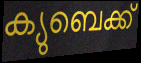
ക്യുബെക്ക്